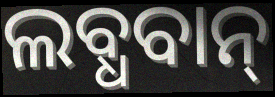
ଲବ୍ଧବାନ୍